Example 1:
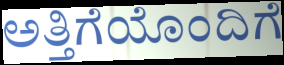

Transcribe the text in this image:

ಅತ್ತಿಗೆಯೊಂದಿಗೆ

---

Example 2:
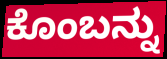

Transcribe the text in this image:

ಕೊಂಬನ್ನು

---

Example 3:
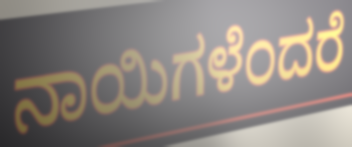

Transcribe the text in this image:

ನಾಯಿಗಳೆಂದರೆ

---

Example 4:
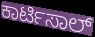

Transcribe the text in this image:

ಕಾರ್ಟಿಸಾಲ್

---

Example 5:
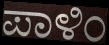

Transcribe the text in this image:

ಪಾಳಿಂ